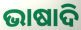
ଭାଷାଦି